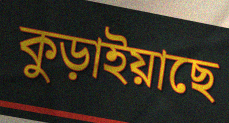
কুড়াইয়াছে